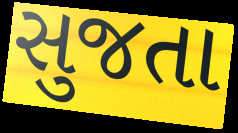
સુજતા